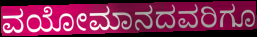
ವಯೋಮಾನದವರಿಗೂ